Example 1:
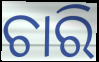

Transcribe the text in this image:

ଚାରି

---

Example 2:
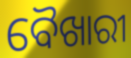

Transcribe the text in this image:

ବୈଖାରୀ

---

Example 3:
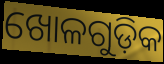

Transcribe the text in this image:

ଖୋଳଗୁଡ଼ିକ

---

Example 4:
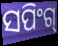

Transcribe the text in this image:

ସପିଂଗ୍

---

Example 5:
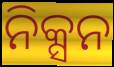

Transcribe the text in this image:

ନିକ୍ସନ